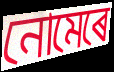
নোমেৰে